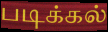
படிக்கல்